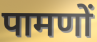
पामणों